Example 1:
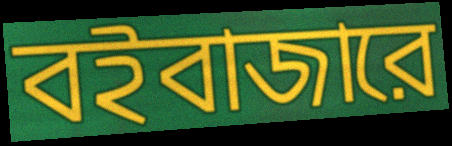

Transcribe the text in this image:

বইবাজারে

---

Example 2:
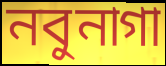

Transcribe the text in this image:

নবুনাগা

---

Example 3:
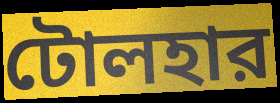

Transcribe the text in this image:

টোলহার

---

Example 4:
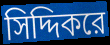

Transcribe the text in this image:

সিদ্দিকরে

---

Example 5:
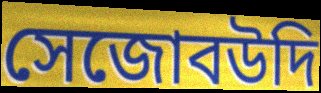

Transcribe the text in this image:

সেজোবউদি